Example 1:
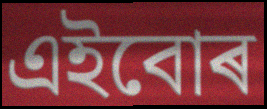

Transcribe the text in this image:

এইবোৰ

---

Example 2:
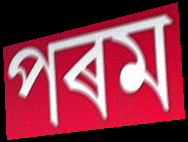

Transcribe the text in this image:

পৰম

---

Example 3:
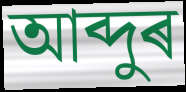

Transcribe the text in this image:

আব্দুৰ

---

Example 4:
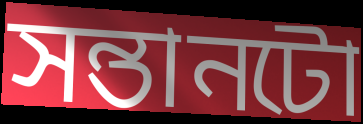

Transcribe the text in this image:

সন্তানটো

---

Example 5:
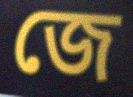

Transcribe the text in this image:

জে